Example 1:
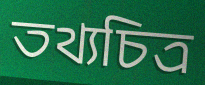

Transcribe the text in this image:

তথ্যচিত্ৰ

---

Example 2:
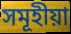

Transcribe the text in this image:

সমূহীয়া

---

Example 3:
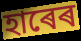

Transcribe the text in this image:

হাৰেৰ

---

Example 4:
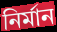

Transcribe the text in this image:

নিৰ্মান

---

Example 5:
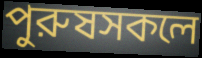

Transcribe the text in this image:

পুৰুষসকলে